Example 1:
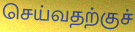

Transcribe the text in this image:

செய்வதற்குச்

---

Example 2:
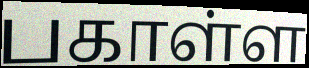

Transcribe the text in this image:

பகாள்ள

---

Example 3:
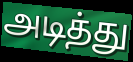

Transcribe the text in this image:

அடித்து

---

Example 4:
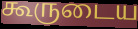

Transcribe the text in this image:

கூருடைய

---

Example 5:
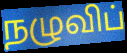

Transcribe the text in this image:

நழுவிப்